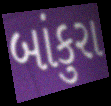
બાંકુરા